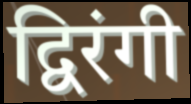
द्विरंगी